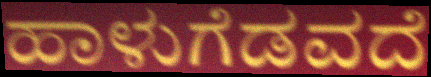
ಹಾಳುಗೆಡವದೆ